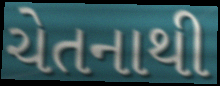
ચેતનાથી